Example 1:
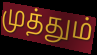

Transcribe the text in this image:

முத்தும்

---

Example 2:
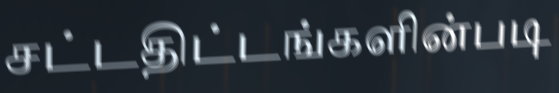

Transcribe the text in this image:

சட்டதிட்டங்களின்படி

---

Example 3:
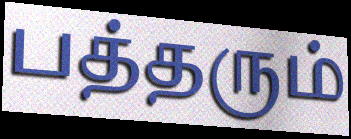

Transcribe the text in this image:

பத்தரும்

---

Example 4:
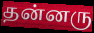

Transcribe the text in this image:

தன்னரு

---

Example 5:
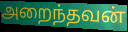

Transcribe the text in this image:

அறைந்தவன்